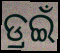
ଡ୍ରଇଁ